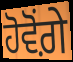
ਹੋਵੋਂਗ਼ੇ